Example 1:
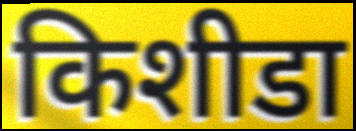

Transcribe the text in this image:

किशीडा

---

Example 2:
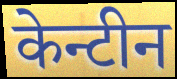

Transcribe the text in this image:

केन्टीन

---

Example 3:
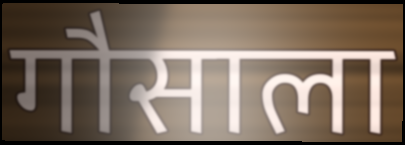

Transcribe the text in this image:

गौसाला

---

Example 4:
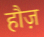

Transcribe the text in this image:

हौज़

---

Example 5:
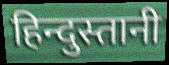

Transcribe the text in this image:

हिन्‍दुस्‍तानी